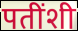
पतींशी